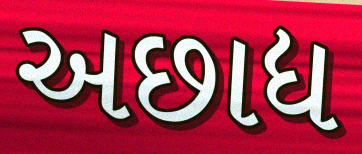
અછાદ્ય